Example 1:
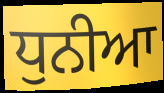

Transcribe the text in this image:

ਧੁਨੀਆ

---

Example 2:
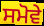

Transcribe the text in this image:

ਸਮੋਵੇ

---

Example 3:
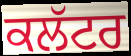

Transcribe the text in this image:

ਕਲੱਟਰ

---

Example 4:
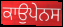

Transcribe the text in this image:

ਕਾਉਪੇਨਸ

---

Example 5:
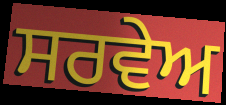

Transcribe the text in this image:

ਸਰਵੇਅ